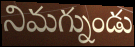
నిమగ్నుండు